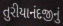
તુરીયાનંદજીનું